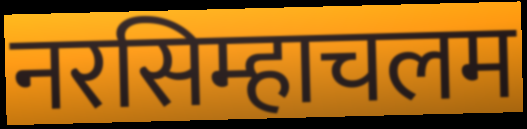
नरसिम्हाचलम